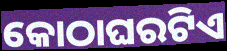
କୋଠାଘରଟିଏ